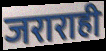
जराराही